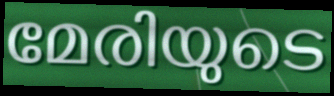
മേരിയുടെ